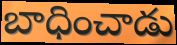
బాధించాడు